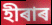
হীৰাৰ